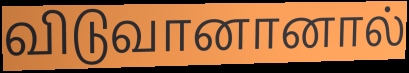
விடுவானானால்